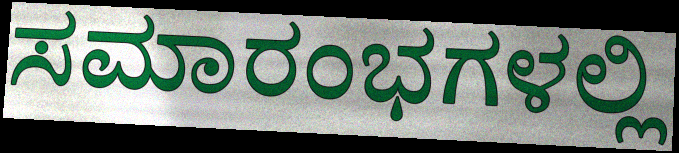
ಸಮಾರಂಭಗಳಲ್ಲಿ